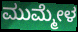
ಮುಮ್ಮೇಳ